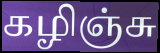
கழிஞ்சு